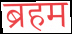
ब्रहम